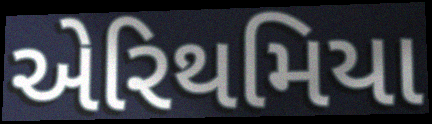
એરિથમિયા